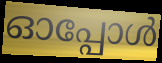
ഓപ്പോൾ